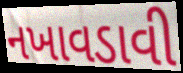
નખાવડાવી